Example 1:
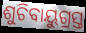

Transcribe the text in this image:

ଶୁଚିବାୟୁଗ୍ରସ୍ତ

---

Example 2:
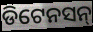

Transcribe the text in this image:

ଡିଟେନସନ୍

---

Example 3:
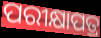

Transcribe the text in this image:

ପରୀକ୍ଷାପତ୍ର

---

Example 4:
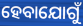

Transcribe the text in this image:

ହେବାଯୋଗୁଁ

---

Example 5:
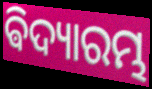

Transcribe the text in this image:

ଵିଦ୍ୟାରମ୍ଭ